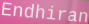
Endhiran